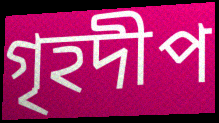
গৃহদীপ